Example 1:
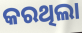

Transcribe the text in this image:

କରଥିଲା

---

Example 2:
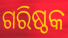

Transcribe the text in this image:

ଗରିଷ୍ଠକ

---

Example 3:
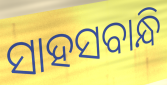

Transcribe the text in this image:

ସାହସବାନ୍ଧି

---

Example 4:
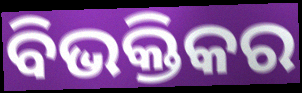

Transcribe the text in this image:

ବିଭକ୍ତିକର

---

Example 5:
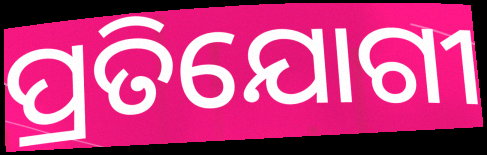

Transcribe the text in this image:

ପ୍ରତିଯୋଗୀ